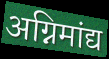
अग्निमांद्य